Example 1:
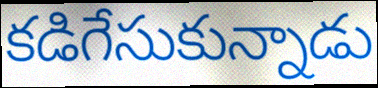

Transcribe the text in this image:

కడిగేసుకున్నాడు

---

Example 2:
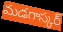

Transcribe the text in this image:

మడగాస్కర్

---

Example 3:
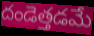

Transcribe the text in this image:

దండెత్తడమే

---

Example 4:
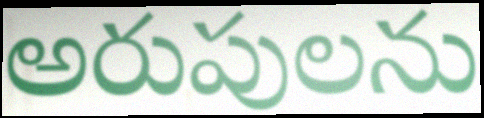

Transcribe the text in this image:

అరుపులను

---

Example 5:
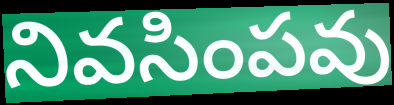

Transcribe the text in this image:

నివసింపవు